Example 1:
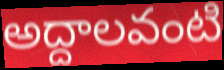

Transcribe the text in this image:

అద్దాలవంటి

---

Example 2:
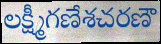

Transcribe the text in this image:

లక్ష్మీగణేశచరణౌ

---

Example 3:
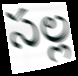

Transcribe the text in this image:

సల్ల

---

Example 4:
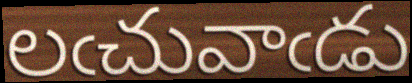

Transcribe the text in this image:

లఁచువాఁడు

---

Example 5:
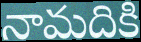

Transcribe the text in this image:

నామదికి